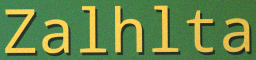
Zalhlta